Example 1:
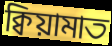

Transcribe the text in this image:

ক্বিয়ামাত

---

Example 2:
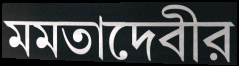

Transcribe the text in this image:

মমতাদেবীর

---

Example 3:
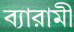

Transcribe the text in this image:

ব্যারামী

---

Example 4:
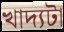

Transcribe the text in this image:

খাদ্যটা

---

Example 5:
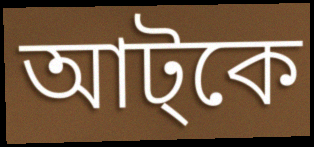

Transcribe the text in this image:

আট্কে